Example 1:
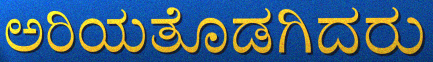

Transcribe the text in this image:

ಅರಿಯತೊಡಗಿದರು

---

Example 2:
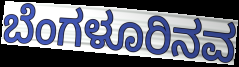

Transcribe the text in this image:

ಬೆಂಗಳೂರಿನವ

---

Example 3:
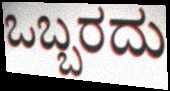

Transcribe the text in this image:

ಒಬ್ಬರದು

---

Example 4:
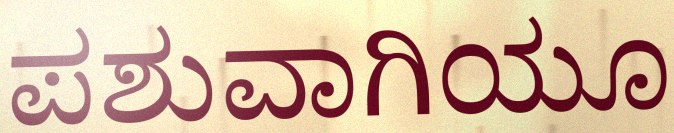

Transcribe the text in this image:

ಪಶುವಾಗಿಯೂ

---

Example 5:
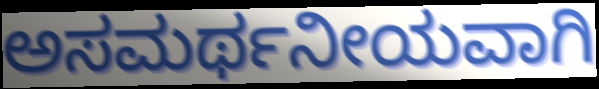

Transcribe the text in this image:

ಅಸಮರ್ಥನೀಯವಾಗಿ